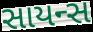
સાયન્સ